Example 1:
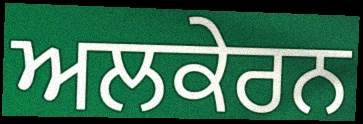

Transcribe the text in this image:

ਅਲਕੇਰਨ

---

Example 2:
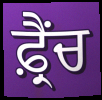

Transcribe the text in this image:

ਫ਼੍ਰੈਂਚ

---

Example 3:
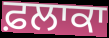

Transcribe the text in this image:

ਫ਼ਲਾਕਾ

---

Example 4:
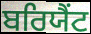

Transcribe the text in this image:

ਬਰਿਯੈਂਟ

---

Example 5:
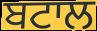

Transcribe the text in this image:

ਬਟਾਲ